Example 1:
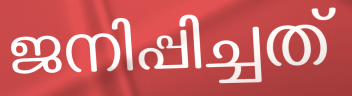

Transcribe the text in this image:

ജനിപ്പിച്ചത്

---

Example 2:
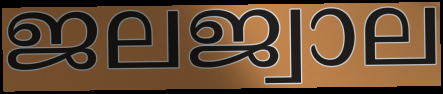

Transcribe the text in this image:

ജലജ്വാല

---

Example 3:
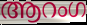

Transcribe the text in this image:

ആറംഗ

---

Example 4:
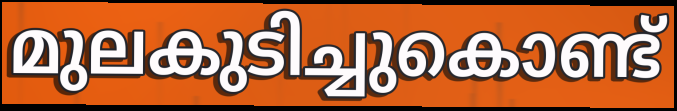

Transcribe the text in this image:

മുലകുടിച്ചുകൊണ്ട്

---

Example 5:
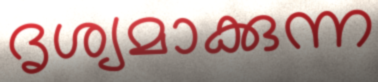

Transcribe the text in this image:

ദൃശ്യമാക്കുന്ന